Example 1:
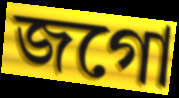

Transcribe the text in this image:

জগো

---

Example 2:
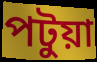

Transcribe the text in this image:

পটুয়া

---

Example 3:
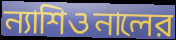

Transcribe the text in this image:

ন্যাশিওনালের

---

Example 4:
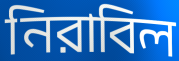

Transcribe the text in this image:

নিরাবিল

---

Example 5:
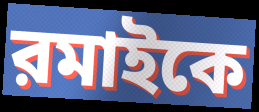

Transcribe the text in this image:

রমাইকে